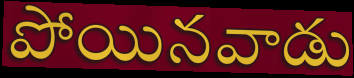
పోయినవాడు